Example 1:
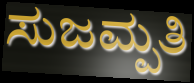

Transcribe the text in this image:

ಸುಜಮ್ಪತಿ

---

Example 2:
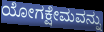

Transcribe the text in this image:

ಯೋಗಕ್ಷೇಮವನ್ನು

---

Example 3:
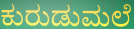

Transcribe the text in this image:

ಕುರುಡುಮಲೆ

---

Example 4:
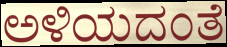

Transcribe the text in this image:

ಅಳಿಯದಂತೆ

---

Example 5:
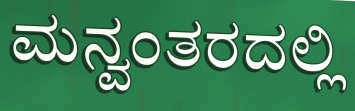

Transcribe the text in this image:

ಮನ್ವಂತರದಲ್ಲಿ